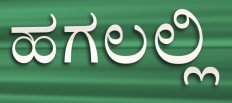
ಹಗಲಲ್ಲಿ